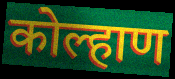
कोल्हाण